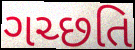
ગચ્છતિ